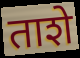
ताशे